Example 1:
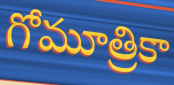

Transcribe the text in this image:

గోమూత్రికా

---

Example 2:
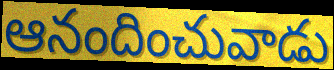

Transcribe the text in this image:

ఆనందించువాడు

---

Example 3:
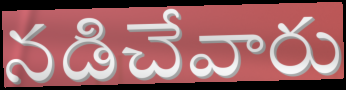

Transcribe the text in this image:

నడిచేవారు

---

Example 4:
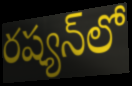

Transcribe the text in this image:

రష్యన్‌లో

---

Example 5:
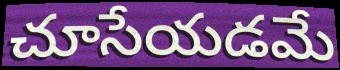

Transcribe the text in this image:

చూసేయడమే